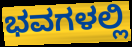
ಭವಗಳಲ್ಲಿ